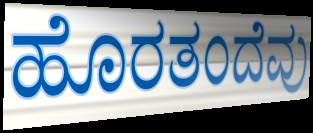
ಹೊರತಂದೆವು